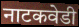
नाटकवेडी